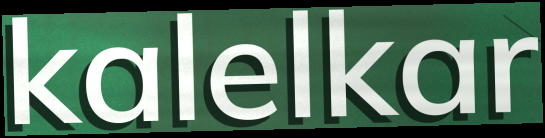
kalelkar